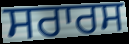
ਸਰਾਰਸ